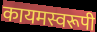
कायमस्वरूपी